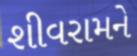
શીવરામને